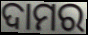
ଦାମର